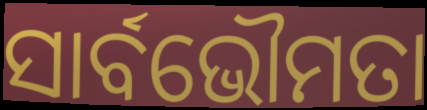
ସାର୍ବଭୌମତା